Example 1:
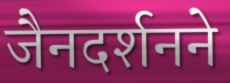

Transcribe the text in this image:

जैनदर्शनने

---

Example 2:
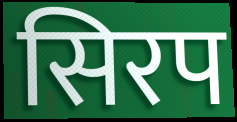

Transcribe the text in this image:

सिरप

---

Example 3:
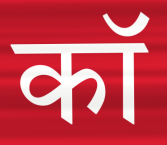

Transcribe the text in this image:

कॉ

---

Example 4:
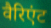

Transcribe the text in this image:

वैरिएंट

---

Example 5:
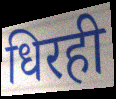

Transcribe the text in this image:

धिरही